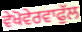
ਵੇਖੋਵੇਰਵਾਫੁੱਲ